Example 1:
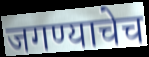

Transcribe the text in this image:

जगण्याचेच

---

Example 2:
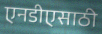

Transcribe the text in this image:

एनडीएसाठी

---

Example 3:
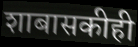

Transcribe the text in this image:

शाबासकीही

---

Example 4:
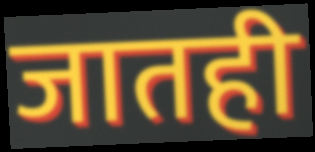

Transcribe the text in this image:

जातही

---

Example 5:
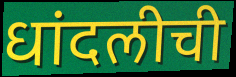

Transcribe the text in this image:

धांदलीची